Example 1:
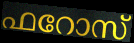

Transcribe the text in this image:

ഫറോസ്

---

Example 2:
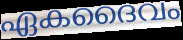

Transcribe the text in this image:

ഏകദൈവം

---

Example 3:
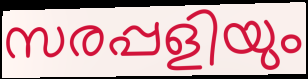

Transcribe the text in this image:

സരപ്പളിയും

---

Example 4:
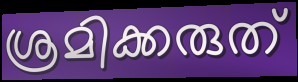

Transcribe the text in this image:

ശ്രമിക്കരുത്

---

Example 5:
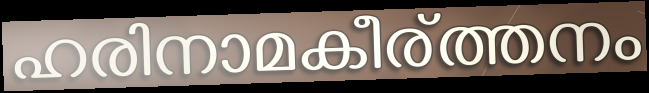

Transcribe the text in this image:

ഹരിനാമകീര്ത്തനം